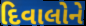
દિવાલોને